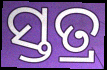
ସ୍ତତ୍ର